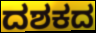
ದಶಕದ